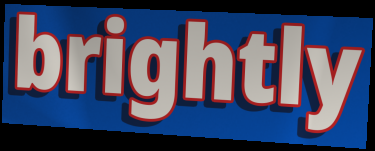
brightly